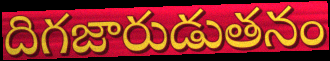
దిగజారుడుతనం